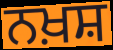
ਨਖ਼ਸ਼